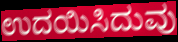
ಉದಯಿಸಿದುವು